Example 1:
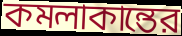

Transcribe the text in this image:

কমলাকান্তের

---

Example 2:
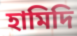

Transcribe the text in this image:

হামিদি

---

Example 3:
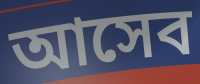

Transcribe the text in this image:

আসেব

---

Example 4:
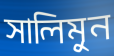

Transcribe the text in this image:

সালিমুন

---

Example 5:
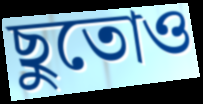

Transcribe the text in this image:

ছুতোও